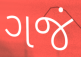
ગજં